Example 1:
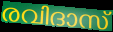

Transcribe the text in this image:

രവിദാസ്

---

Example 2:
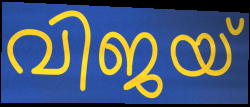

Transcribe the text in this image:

വിജയ്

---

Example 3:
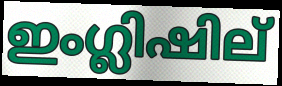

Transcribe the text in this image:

ഇംഗ്ലിഷില്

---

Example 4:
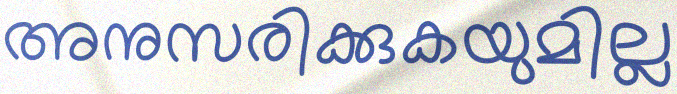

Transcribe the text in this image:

അനുസരിക്കുകയുമില്ല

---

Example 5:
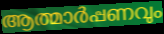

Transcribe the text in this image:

ആത്മാർപ്പണവും